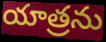
యాత్రను